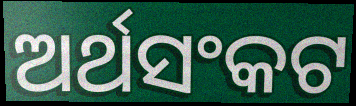
ଅର୍ଥସଂକଟ